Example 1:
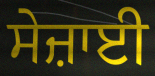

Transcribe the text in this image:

ਸੇਜ਼ਾਈ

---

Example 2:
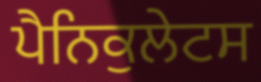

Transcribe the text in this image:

ਪੈਨਿਕੁਲੇਟਸ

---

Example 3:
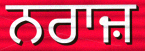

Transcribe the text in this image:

ਨਰਾਜ਼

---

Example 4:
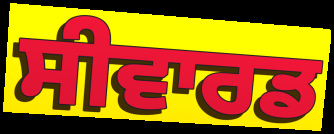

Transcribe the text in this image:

ਸੀਵਾਰਡ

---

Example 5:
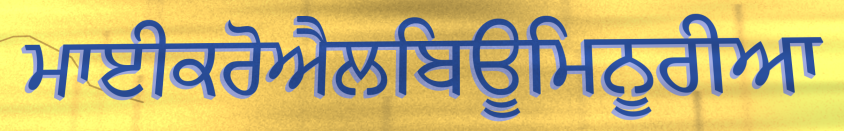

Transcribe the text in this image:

ਮਾਈਕਰੋਐਲਬਿਊਮਿਨੂਰੀਆ